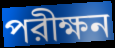
পরীক্ষন